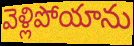
వెళ్లిపోయాను